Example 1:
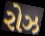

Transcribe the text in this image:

રોઝ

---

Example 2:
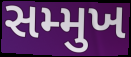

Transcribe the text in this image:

સમ્મુખ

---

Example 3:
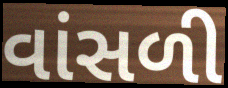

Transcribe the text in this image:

વાંસળી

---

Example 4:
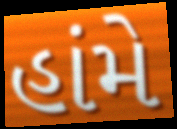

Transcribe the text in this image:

હાંમે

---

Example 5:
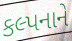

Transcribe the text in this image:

કલ્પનાને